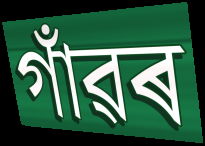
গাঁৱৰ